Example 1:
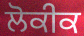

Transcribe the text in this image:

ਲੋਕੀਕ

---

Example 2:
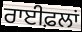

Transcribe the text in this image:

ਰਾਈਫ਼ਲਾਂ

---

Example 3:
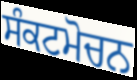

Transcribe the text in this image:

ਸੰਕਟਮੋਚਨ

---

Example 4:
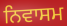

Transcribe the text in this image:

ਨਿਵਾਸਮ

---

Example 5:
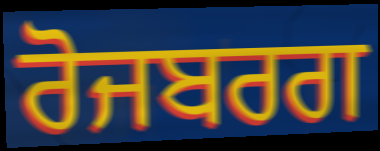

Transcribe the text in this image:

ਰੋਜਬਰਗ